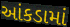
આંકડામાં